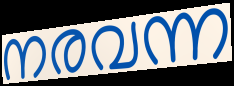
നരവന്ന